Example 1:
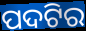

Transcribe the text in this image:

ପଦଟିର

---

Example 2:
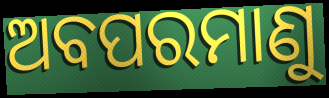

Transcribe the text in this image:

ଅବପରମାଣୁ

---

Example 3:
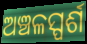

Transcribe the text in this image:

ଅଞ୍ଚଳସ୍ପର୍ଶ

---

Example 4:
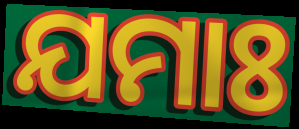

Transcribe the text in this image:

ଯମାଃ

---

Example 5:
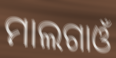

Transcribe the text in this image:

ମାଲଗାଓଁ